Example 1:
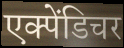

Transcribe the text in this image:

एक्पेंडिचर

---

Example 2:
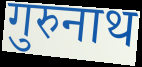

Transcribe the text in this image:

गुरुनाथ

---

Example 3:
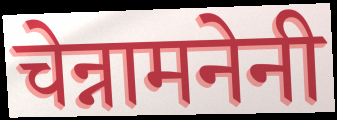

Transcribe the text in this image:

चेन्नामनेनी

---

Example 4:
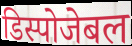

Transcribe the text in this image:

डिस्पोजेबल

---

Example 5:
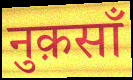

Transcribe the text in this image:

नुक़साँ